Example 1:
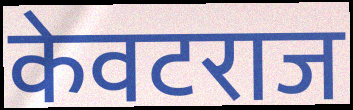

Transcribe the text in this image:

केवटराज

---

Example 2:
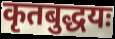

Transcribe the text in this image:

कृतबुद्धयः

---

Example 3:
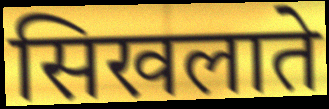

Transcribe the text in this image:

सिखलाते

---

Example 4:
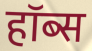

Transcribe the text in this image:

हॉब्स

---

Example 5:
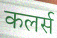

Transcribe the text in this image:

कलर्स